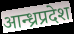
आन्ध्रप्रदेश